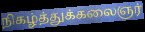
நிகழ்த்துக்கலைஞர்